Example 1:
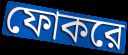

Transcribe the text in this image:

ফোকরে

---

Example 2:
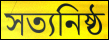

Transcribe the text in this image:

সত্যনিষ্ঠ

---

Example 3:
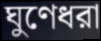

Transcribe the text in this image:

ঘুণেধরা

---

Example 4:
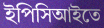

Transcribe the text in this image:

ইপিসিআইতে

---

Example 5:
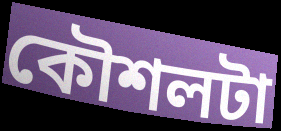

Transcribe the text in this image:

কৌশলটা